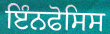
ਇੰਨਫੋਸਿਸ